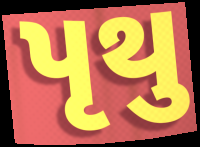
પૃથુ